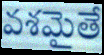
వశమైతే